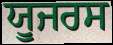
ਯੂਜਰਸ